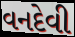
વનદેવી